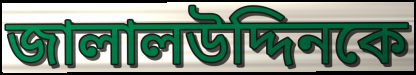
জালালউদ্দিনকে